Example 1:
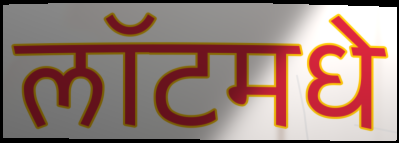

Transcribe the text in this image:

लॉटमधे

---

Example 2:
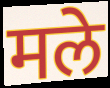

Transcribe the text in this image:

मले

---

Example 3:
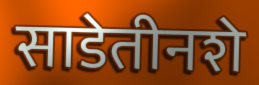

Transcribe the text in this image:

साडेतीनशे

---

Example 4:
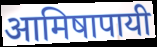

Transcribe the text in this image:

आमिषापायी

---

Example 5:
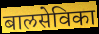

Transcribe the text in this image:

बालसेविका